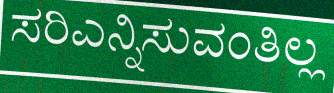
ಸರಿಎನ್ನಿಸುವಂತಿಲ್ಲ